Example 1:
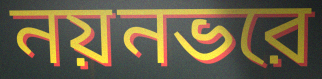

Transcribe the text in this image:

নয়নভরে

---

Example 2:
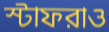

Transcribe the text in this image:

স্টাফরাও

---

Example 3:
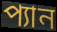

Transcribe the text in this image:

প্যান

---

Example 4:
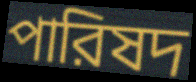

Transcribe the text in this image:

পারিষদ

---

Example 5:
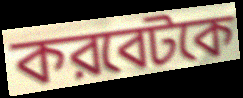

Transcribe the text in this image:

করবেটকে